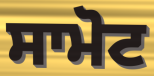
ਸਾਮੋਟ